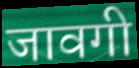
जावगी